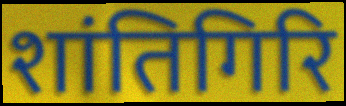
शांतिगिरि